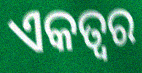
ଏକତ୍ବର